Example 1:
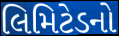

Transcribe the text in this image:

લિમિટેડનો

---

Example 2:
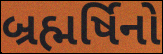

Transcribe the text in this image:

બ્રહ્મર્ષિનો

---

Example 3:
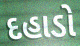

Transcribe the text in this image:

દહાડો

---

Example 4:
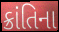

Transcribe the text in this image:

ક્રાંતિના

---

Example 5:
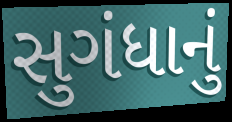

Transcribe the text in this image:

સુગંધાનું